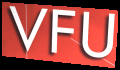
VFU